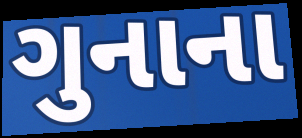
ગુનાના